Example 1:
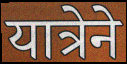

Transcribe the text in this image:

यात्रेने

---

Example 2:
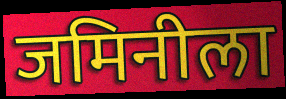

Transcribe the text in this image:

जमिनीला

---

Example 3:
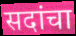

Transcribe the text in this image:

सदांचा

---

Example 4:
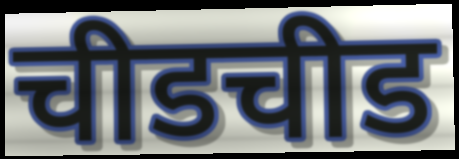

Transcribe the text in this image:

चीडचीड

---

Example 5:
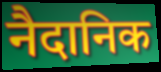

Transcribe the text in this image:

नैदानिक